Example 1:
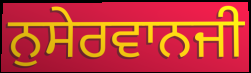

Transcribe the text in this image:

ਨੁਸੇਰਵਾਨਜੀ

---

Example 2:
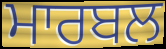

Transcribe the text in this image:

ਮਾਰਬਲ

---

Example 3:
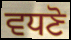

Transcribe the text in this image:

ਵਧਣੋ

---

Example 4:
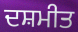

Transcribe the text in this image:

ਦਸ਼ਮੀਤ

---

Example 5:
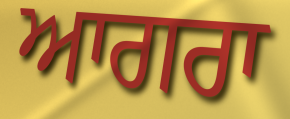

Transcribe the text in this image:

ਆਗਰਾ